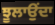
ਝੂਲਾਉਂਦਾ